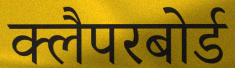
क्लैपरबोर्ड